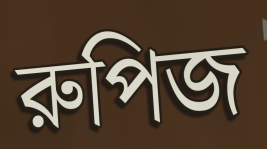
রুপিজ